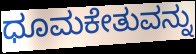
ಧೂಮಕೇತುವನ್ನು